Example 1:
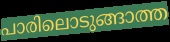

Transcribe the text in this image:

പാരിലൊടുങ്ങാത്ത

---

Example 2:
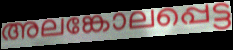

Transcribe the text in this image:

അലങ്കോലപ്പെട്ട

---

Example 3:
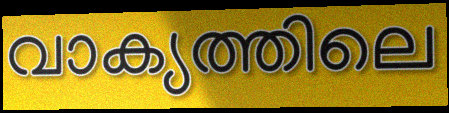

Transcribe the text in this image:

വാക്യത്തിലെ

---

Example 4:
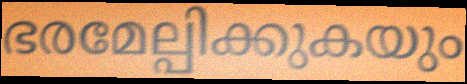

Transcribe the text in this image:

ഭരമേല്പിക്കുകയും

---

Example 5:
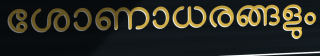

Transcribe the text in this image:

ശോണാധരങ്ങളും